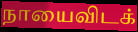
நாயைவிடக்